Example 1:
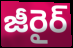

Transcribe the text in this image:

జీరైర్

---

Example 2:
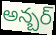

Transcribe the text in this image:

అన్బర్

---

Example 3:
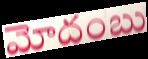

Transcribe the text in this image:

మోదంబు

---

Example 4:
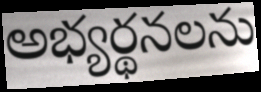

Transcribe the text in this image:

అభ్యర్థనలను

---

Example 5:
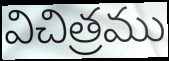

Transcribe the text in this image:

విచిత్రము